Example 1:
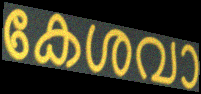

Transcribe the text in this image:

കേശവാ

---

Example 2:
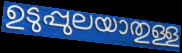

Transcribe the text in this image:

ഉടുപ്പുലയാതുള്ള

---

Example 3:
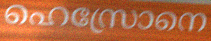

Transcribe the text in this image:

ഹെസ്രോനെ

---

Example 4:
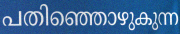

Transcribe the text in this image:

പതിഞ്ഞൊഴുകുന്ന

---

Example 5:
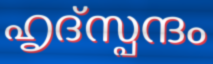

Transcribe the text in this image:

ഹൃദ്സ്പന്ദം